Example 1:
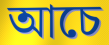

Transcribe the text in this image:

আচে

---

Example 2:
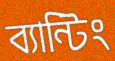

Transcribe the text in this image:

ব্যান্টিং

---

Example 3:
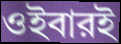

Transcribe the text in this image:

ওইবারই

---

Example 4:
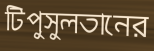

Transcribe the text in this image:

টিপুসুলতানের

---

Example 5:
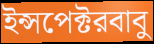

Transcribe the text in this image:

ইন্সপেক্টরবাবু